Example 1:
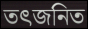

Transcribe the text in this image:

তৎজনিত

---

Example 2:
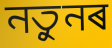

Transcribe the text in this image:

নতুনৰ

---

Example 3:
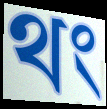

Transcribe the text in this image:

থং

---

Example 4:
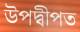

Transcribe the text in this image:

উপদ্বীপত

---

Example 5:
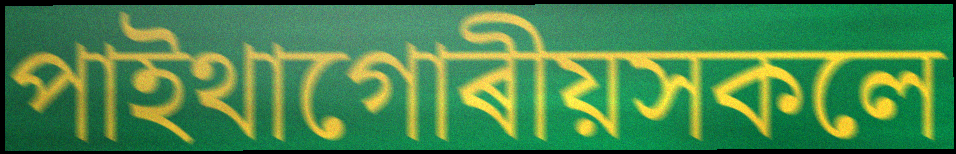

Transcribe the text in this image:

পাইথাগোৰীয়সকলে